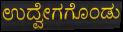
ಉದ್ವೇಗಗೊಂಡು